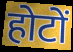
होटों